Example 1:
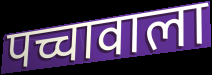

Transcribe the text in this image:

पच्चावाला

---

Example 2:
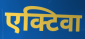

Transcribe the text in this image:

एक्टिवा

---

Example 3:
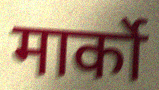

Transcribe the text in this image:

मार्को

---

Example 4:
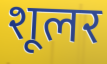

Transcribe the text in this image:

शूलर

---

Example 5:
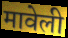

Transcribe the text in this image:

मावेली